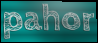
pahor